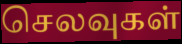
செலவுகள்